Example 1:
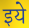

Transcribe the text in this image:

इये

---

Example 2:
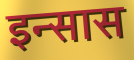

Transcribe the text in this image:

इन्सास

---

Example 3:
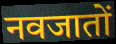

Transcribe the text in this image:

नवजातों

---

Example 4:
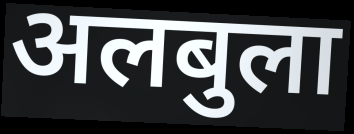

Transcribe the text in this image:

अलबुला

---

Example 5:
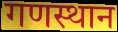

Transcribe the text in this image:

गणस्थान